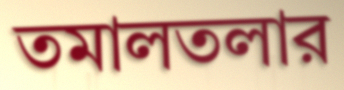
তমালতলার